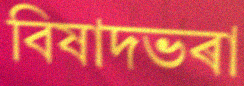
বিষাদভৰা